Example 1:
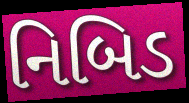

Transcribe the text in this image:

નિબિડ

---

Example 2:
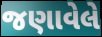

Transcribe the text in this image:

જણાવેલે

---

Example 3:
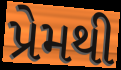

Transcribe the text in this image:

પ્રેમથી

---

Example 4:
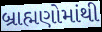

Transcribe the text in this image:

બ્રાહ્મણોમાંથી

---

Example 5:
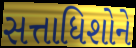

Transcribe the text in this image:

સત્તાધિશોને